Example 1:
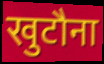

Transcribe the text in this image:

खुटौना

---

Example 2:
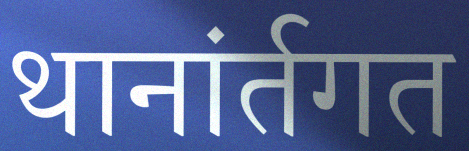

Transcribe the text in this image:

थानांर्तगत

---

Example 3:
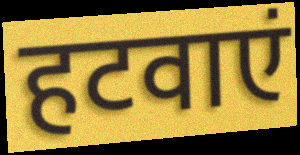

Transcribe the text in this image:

हटवाएं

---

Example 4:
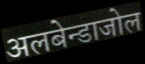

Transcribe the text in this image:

अलबेन्डाजोल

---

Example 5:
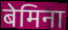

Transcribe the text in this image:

बेमिना